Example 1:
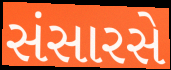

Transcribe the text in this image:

સંસારસે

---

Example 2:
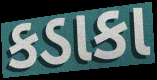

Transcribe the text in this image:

કડાકા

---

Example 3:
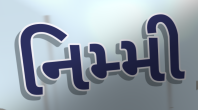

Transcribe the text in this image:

નિમ્મી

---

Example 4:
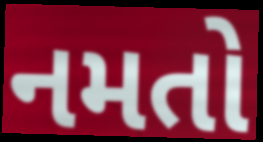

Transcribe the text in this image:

નમતો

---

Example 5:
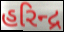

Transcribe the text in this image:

હરિન્દ્ર